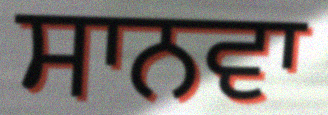
ਸਾਨਵਾ